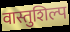
वास्तुशिल्प